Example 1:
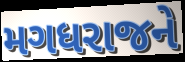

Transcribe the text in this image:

મગધરાજને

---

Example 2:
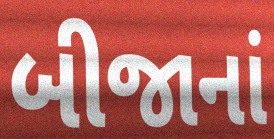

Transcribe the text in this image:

બીજાનાં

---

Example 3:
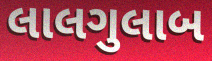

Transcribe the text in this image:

લાલગુલાબ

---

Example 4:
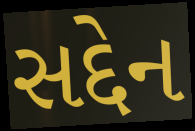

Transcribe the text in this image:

સદ્દેન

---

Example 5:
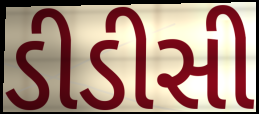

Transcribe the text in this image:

ડીડીસી